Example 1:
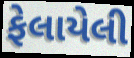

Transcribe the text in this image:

ફેલાયેલી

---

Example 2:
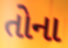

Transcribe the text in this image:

તોના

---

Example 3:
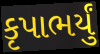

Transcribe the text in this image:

કૃપાભર્યું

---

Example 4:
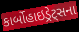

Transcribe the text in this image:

કાર્બોહાઇડ્રેટ્સના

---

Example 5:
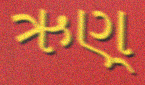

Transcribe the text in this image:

ઋણ્